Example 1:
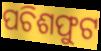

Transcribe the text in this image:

ପଚିଶଫୁଟ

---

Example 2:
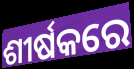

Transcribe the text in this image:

ଶୀର୍ଷକରେ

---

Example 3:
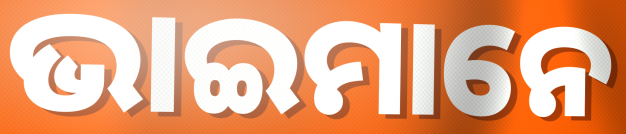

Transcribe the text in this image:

ଭାଇମାନେ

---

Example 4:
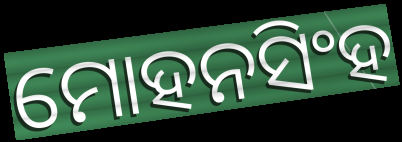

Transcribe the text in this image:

ମୋହନସିଂହ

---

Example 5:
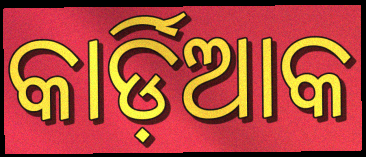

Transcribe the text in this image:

କାର୍ଡ଼ିଆକ